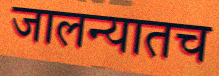
जालन्यातच